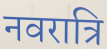
नवरात्रि